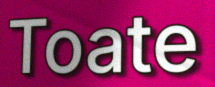
Toate